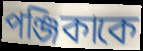
পঞ্জিকাকে